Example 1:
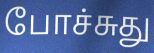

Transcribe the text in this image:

போச்சுது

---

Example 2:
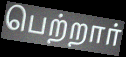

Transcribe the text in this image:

பெற்றார்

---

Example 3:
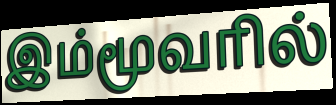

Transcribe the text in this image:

இம்மூவரில்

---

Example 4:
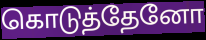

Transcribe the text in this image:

கொடுத்தேனோ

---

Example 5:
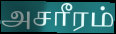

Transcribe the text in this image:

அசரீரம்